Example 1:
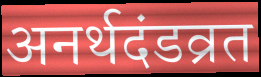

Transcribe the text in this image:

अनर्थदंडव्रत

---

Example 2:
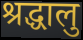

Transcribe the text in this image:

श्रद्धालु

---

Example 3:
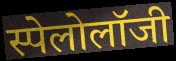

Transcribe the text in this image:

स्पेलोलॉजी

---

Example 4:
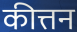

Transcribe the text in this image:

कीत्तन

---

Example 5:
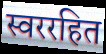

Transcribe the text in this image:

स्वररहित